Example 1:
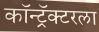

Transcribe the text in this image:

कॉन्ट्रॅक्टरला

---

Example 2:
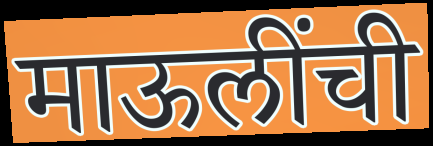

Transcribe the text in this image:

माऊलींची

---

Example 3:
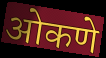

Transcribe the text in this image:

ओकणे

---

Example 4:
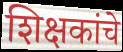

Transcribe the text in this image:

शिक्षकांचे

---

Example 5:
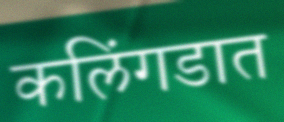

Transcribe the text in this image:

कलिंगडात